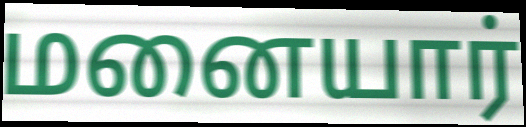
மனையார்